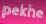
pekhe